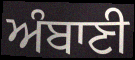
ਅੰਬਾਣੀ